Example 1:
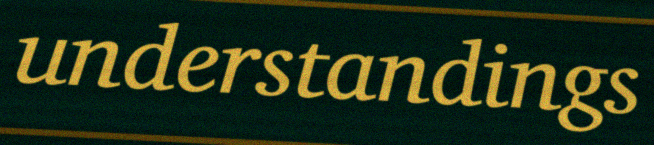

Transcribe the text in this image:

understandings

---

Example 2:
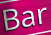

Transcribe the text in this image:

Bar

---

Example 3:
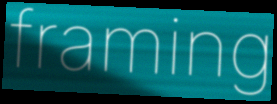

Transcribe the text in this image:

framing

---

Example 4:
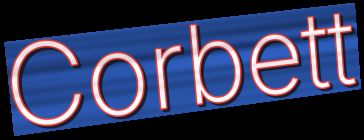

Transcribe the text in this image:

Corbett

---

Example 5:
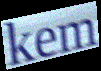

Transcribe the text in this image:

kem